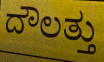
ದೌಲತ್ತು